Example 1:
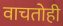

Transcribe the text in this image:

वाचतोही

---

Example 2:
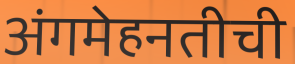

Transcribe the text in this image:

अंगमेहनतीची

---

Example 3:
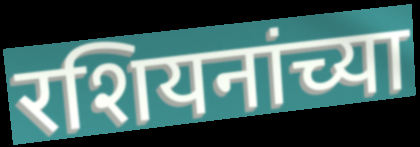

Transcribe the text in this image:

रशियनांच्या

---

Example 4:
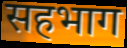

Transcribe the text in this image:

सहभाग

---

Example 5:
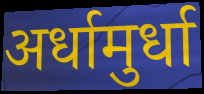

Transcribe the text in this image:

अर्धामुर्धा